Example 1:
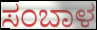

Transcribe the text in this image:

ಸಂಬಾಳ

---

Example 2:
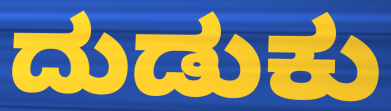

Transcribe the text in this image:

ದುಡುಕು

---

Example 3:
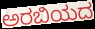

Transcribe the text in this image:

ಅರಬಿಯದ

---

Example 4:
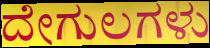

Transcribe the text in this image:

ದೇಗುಲಗಳು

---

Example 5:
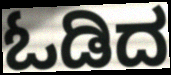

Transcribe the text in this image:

ಓಡಿದ